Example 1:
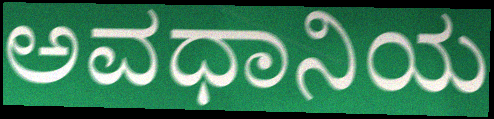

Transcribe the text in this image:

ಅವಧಾನಿಯ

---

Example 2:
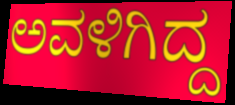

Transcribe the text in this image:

ಅವಳಿಗಿದ್ದ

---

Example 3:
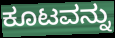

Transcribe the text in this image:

ಕೂಟವನ್ನು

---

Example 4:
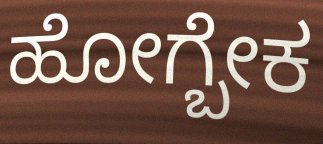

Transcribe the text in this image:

ಹೋಗ್ಬೇಕ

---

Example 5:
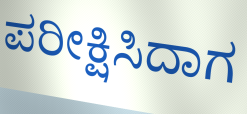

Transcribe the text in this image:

ಪರೀಕ್ಷಿಸಿದಾಗ